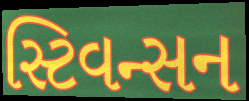
સ્ટિવન્સન